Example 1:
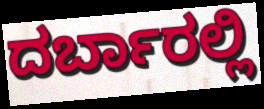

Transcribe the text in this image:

ದರ್ಬಾರಲ್ಲಿ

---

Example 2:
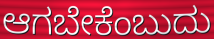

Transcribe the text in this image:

ಆಗಬೇಕೆಂಬುದು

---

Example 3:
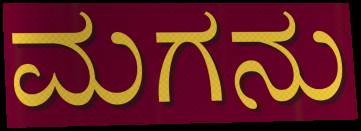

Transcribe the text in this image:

ಮಗನು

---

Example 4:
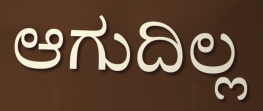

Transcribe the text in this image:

ಆಗುದಿಲ್ಲ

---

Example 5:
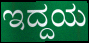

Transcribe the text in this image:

ಇದ್ದಯ